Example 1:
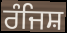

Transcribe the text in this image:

ਰੰਜਿਸ਼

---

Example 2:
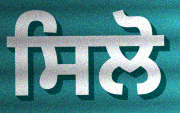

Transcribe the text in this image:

ਸਿਲੋ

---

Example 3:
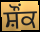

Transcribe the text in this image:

ਸ਼ੌੰਕ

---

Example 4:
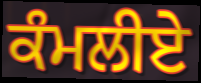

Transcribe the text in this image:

ਕੰਮਲੀਏ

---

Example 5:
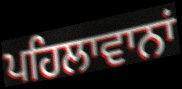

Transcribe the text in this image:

ਪਹਿਲਾਵਾਨਾਂ